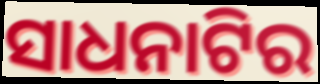
ସାଧନାଟିର